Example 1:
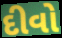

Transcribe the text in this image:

દીવો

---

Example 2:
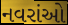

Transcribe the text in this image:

નવરાંઓ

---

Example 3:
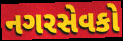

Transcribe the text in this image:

નગરસેવકો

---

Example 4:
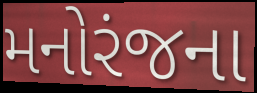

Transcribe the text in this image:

મનોરંજના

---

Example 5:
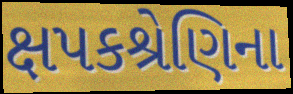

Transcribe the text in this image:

ક્ષપકશ્રેણિના